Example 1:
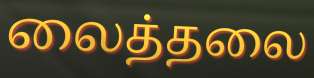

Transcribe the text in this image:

லைத்தலை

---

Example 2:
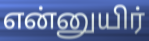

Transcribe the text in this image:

என்னுயிர்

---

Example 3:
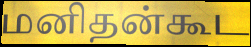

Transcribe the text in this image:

மனிதன்கூட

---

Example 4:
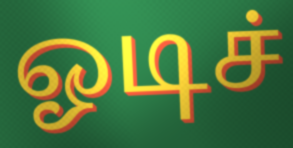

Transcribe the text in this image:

ஓடிச்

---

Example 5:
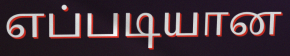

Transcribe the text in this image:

எப்படியான